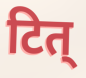
टित्